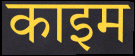
काइम